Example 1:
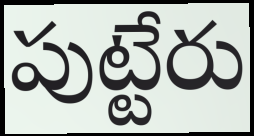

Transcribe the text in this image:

పుట్టేరు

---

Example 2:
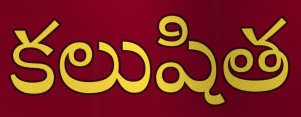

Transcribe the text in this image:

కలుషిత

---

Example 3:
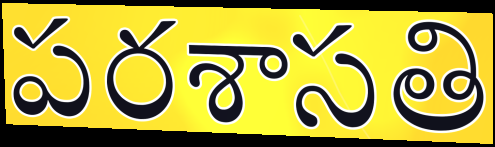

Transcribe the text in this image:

పరశాసతి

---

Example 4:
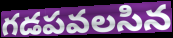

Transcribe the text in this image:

గడపవలసిన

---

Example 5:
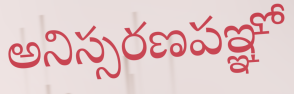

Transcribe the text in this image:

అనిస్సరణపఞ్ఞో